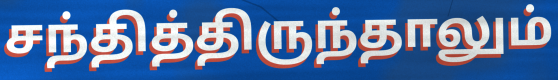
சந்தித்திருந்தாலும்